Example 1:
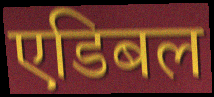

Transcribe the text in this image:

एडिबल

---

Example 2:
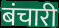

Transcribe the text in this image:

बंचारी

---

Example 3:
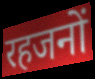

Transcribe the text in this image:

रहजनों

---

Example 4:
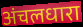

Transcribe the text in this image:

अंचलधारा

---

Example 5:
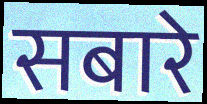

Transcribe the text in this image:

सबारे